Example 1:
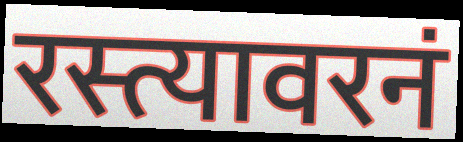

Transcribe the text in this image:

रस्त्यावरनं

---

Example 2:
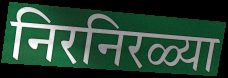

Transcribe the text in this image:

निरनिरळ्या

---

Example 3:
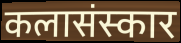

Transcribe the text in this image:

कलासंस्कार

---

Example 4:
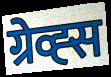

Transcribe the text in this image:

ग्रेव्ह्स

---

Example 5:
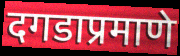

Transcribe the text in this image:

दगडाप्रमाणे